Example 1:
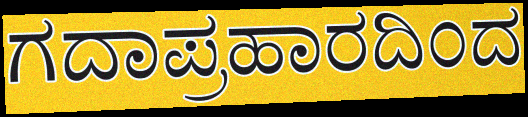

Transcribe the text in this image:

ಗದಾಪ್ರಹಾರದಿಂದ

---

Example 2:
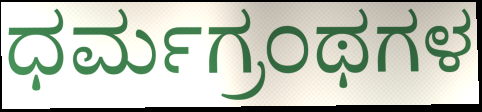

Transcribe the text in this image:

ಧರ್ಮಗ್ರಂಥಗಳ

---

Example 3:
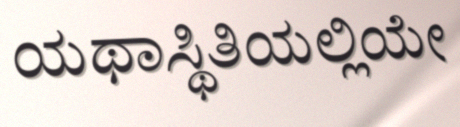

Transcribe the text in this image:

ಯಥಾಸ್ಥಿತಿಯಲ್ಲಿಯೇ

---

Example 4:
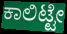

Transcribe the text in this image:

ಕಾಲಿಟ್ಟೇ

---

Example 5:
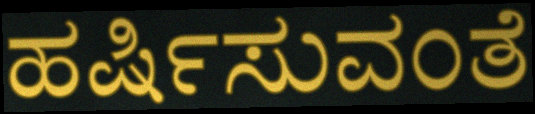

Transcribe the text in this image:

ಹರ್ಷಿಸುವಂತೆ